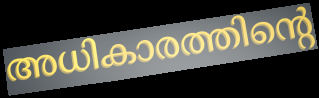
അധികാരത്തിന്റെ